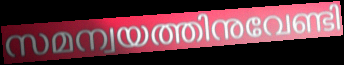
സമന്വയത്തിനുവേണ്ടി